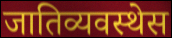
जातिव्यवस्थेस